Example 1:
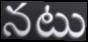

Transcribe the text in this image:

నటు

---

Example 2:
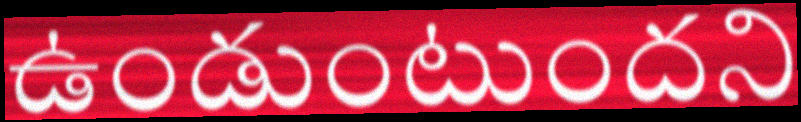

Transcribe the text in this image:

ఉండుంటుందని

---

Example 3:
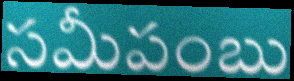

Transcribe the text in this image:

సమీపంబు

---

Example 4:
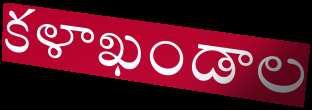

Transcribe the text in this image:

కళాఖండాల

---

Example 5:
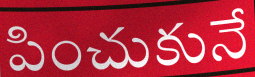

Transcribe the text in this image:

పించుకునే